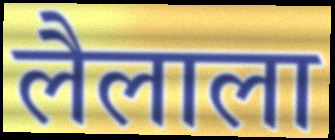
लैलाला